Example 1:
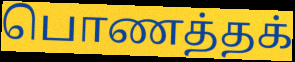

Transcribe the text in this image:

பொணத்தக்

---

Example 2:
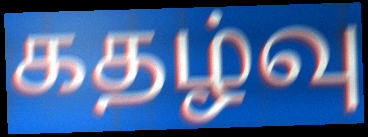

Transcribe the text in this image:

கதழ்வு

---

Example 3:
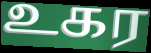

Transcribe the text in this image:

உகர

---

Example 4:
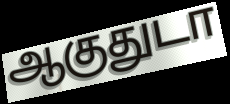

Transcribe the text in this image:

ஆகுதுடா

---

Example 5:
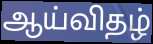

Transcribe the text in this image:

ஆய்விதழ்